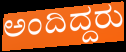
ಅಂದಿದ್ದರು